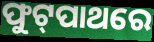
ଫୁଟ୍‍ପାଥରେ